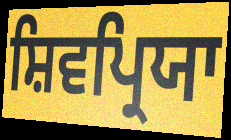
ਸ਼ਿਵਪ੍ਰਿਯਾ